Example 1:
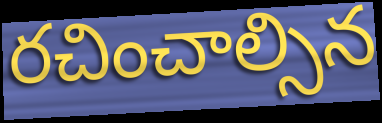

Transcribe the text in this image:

రచించాల్సిన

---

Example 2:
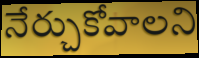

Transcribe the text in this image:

నేర్చుకోవాలని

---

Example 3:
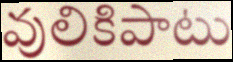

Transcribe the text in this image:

వులికిపాటు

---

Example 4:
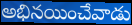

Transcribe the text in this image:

అభినయించేవాడు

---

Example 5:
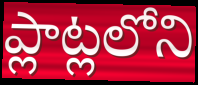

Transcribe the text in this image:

ప్లాట్లలోని